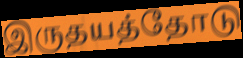
இருதயத்தோடு